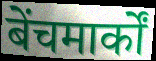
बेंचमार्कों